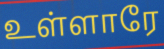
உள்ளாரே